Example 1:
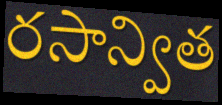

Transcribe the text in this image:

రసాన్విత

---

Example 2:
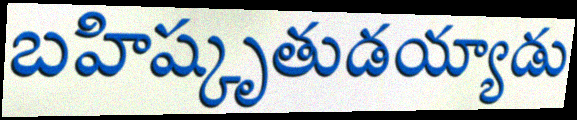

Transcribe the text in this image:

బహిష్కృతుడయ్యాడు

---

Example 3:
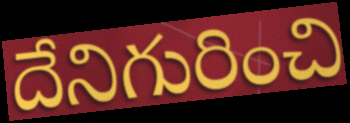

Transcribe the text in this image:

దేనిగురించి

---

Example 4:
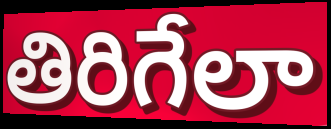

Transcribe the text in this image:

తిరిగేలా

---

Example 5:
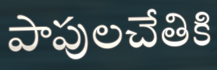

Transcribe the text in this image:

పాపులచేతికి